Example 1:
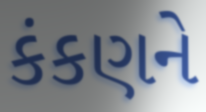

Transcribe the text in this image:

કંકણને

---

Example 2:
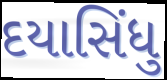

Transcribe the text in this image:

દયાસિંધુ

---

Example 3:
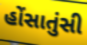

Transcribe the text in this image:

હોંસાતુંસી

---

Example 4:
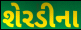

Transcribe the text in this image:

શેરડીના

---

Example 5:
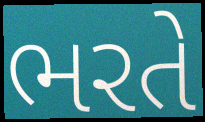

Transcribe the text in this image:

ભરતે